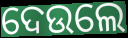
ଦେଉଲେ